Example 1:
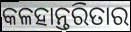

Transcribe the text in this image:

କଳହାନ୍ତରିତାର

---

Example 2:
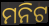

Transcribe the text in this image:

ମନିଟ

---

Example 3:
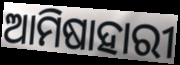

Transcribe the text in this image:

ଆମିଷାହାରୀ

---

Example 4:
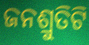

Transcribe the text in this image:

ଜନଶ୍ରୁତିଟି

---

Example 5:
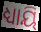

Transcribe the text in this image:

ଧ୍ୟାୟି